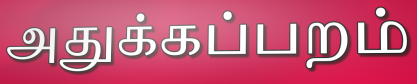
அதுக்கப்பறம்